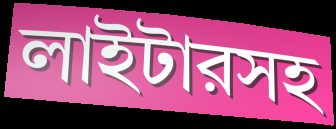
লাইটারসহ